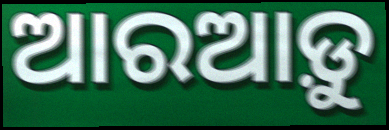
ଆରଆଡ଼ୁ